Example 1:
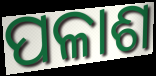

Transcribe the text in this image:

ପଳାଶ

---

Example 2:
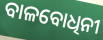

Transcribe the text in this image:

ବାଳବୋଧିନୀ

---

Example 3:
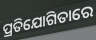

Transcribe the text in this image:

ପ୍ରତିଯୋଗିତାରେ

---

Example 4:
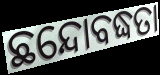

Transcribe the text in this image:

ଛନ୍ଦୋବଦ୍ଧତା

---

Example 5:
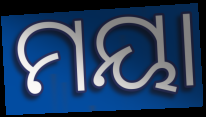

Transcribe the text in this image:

ମୟା